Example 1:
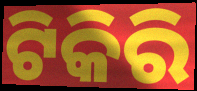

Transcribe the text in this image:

ଟିକିରି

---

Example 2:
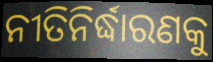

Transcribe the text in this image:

ନୀତିନିର୍ଦ୍ଧାରଣକୁ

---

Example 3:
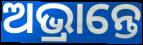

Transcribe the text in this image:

ଅଭ୍ରାନ୍ତେ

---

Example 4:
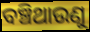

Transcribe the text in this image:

ବଞ୍ଚିଥାଉଣୁ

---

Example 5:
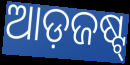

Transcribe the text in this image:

ଆଡ଼ଜଷ୍ଟ୍